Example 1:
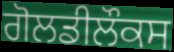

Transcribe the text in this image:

ਗੋਲਡੀਲੌਕਸ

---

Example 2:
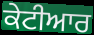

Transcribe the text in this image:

ਕੇਟੀਆਰ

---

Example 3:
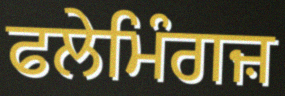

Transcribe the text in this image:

ਫਲੇਮਿੰਗਜ਼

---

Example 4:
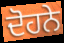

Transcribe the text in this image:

ਦੋਹਨੇ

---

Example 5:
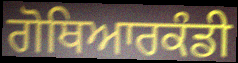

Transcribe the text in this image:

ਗੋਥਿਆਰਕੰਡੀ